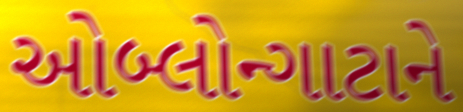
ઓબ્લોન્ગાટાને